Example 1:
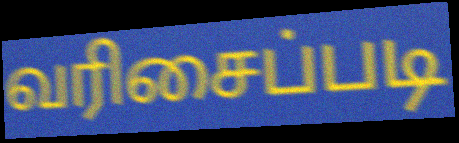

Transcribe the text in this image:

வரிசைப்படி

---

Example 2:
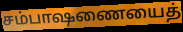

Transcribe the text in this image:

சம்பாஷணையைத்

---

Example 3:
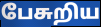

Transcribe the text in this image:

பேசுறிய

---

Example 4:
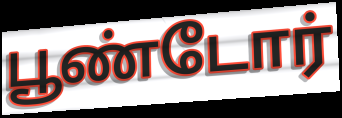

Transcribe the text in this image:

பூண்டோர்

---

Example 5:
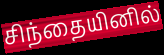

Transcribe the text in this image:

சிந்தையினில்